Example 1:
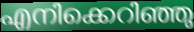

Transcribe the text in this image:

എനിക്കെറിഞ്ഞു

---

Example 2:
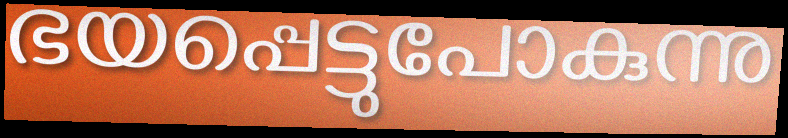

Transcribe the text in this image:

ഭയപ്പെട്ടുപോകുന്നു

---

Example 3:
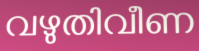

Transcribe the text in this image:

വഴുതിവീണ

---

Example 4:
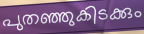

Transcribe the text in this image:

പുതഞ്ഞുകിടക്കും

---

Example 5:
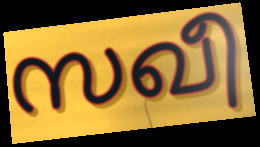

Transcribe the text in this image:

സഖീ